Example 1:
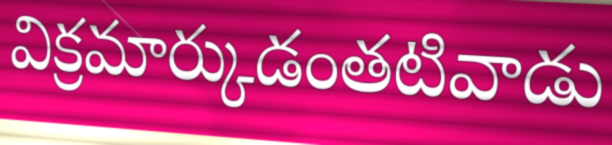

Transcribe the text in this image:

విక్రమార్కుడంతటివాడు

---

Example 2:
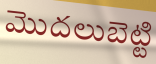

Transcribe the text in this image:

మొదలుబెట్టి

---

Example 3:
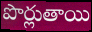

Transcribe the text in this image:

పొర్లుతాయి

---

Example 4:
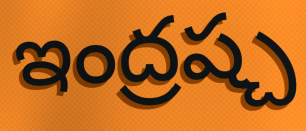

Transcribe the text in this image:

ఇంద్రష్చ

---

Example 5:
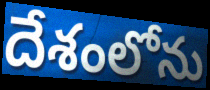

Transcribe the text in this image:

దేశంలోను